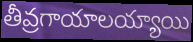
తీవ్రగాయాలయ్యాయి